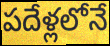
పదేళ్లలోనే